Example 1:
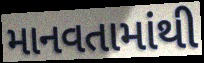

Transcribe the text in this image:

માનવતામાંથી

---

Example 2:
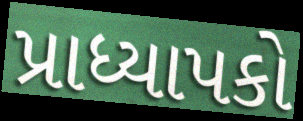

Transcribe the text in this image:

પ્રાધ્યાપકો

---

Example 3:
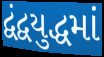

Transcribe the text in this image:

દ્વંદ્વયુદ્ધમાં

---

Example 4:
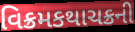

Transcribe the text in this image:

વિક્રમકથાચક્રની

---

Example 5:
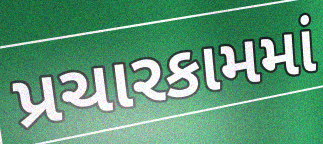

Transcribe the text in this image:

પ્રચારકામમાં